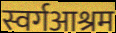
स्वर्गआश्रम